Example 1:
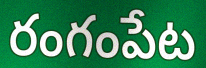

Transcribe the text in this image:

రంగంపేట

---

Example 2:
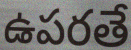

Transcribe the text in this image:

ఉపరతే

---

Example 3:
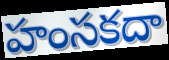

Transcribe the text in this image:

హంసకదా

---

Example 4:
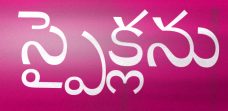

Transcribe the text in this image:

స్పైక్లను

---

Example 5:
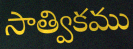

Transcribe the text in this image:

సాత్వికము